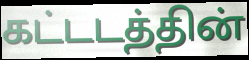
கட்டடத்தின்